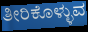
ತೀರಿಕೊಳ್ಳುವ